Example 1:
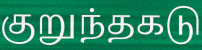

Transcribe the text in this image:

குறுந்தகடு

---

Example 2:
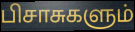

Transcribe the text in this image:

பிசாசுகளும்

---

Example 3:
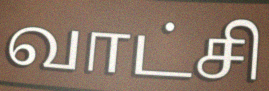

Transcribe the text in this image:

வாட்சி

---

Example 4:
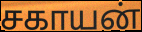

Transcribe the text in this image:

சகாயன்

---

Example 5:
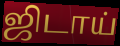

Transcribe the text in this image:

ஜிடாய்